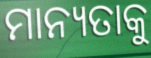
ମାନ୍ୟତାକୁ